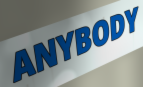
ANYBODY